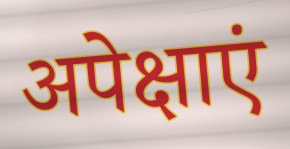
अपेक्षाएं